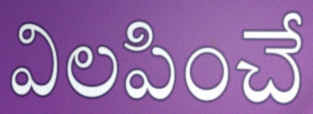
విలపించే